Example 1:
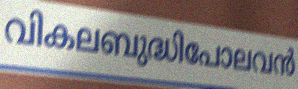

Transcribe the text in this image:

വികലബുദ്ധിപോലവൻ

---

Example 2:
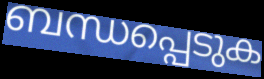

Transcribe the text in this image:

ബന്ധപ്പെടുക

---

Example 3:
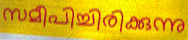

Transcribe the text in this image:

സമീപിച്ചിരിക്കുന്നു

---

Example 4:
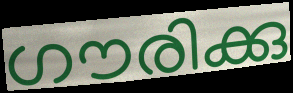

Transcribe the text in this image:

ഗൗരിക്കു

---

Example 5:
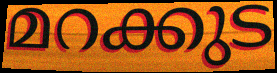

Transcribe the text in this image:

മറക്കുട